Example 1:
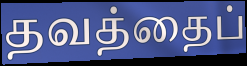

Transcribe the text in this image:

தவத்தைப்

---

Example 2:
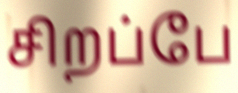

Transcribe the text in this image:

சிறப்பே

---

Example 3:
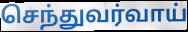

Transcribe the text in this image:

செந்துவர்வாய்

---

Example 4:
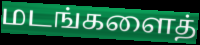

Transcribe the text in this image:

மடங்களைத்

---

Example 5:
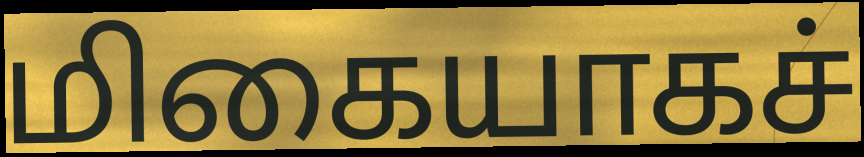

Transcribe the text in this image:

மிகையாகச்